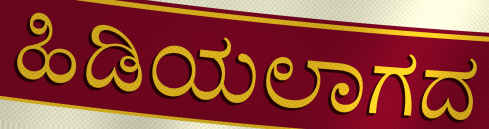
ಹಿಡಿಯಲಾಗದ